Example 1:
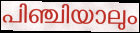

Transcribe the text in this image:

പിഞ്ചിയാലും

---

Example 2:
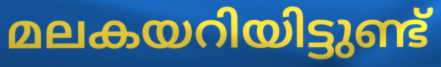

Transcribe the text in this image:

മലകയറിയിട്ടുണ്ട്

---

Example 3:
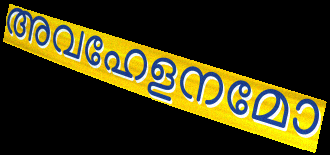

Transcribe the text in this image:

അവഹേളനമോ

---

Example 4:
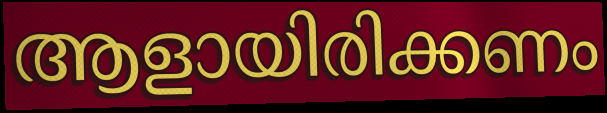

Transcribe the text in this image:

ആളായിരിക്കണം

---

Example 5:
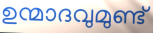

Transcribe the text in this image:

ഉന്മാദവുമുണ്ട്